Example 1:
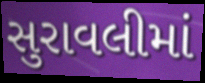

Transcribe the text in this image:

સુરાવલીમાં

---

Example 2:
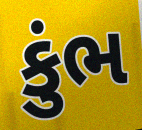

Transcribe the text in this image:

કુંભ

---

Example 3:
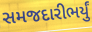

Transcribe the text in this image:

સમજદારીભર્યું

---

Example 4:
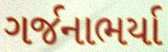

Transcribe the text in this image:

ગર્જનાભર્યા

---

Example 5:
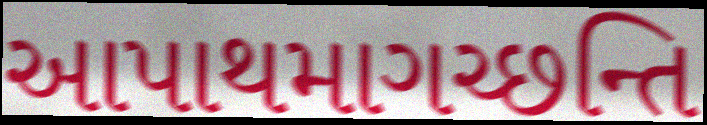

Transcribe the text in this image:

આપાથમાગચ્છન્તિ